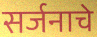
सर्जनाचे